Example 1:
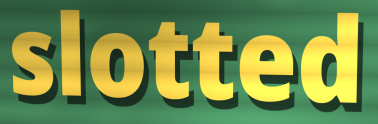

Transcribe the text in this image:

slotted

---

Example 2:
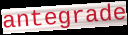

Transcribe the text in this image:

antegrade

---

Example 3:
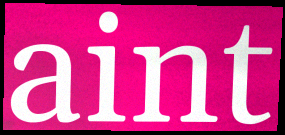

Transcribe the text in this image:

aint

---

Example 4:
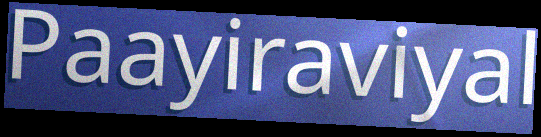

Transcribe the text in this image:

Paayiraviyal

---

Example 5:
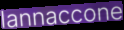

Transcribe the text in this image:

Iannaccone